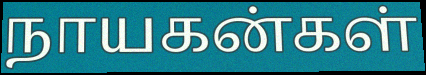
நாயகன்கள்